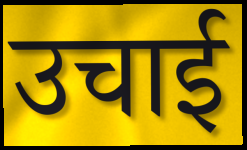
उचाई